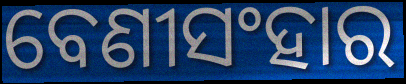
ବେଣୀସଂହାର